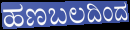
ಹಣಬಲದಿಂದ